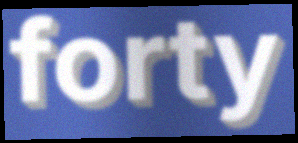
forty